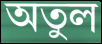
অতুল